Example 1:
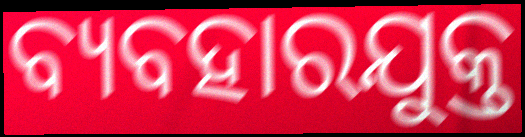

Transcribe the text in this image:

ବ୍ୟବହାରଯୁକ୍ତ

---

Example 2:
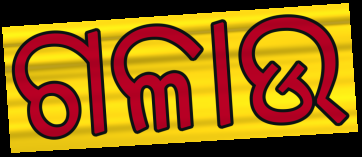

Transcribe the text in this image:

ଗଳାଉ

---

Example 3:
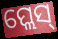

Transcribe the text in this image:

ପ୍ଲେସ୍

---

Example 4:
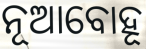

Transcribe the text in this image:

ନୂଆବୋହୂ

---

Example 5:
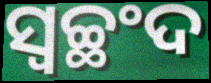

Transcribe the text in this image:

ସ୍ୱଚ୍ଛଂଦ